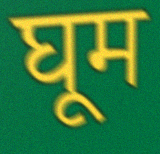
घूम